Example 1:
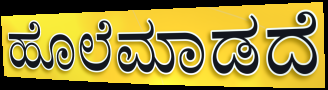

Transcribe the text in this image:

ಹೊಲೆಮಾಡದೆ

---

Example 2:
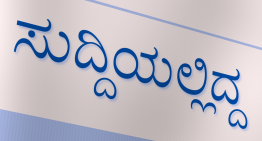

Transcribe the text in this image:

ಸುದ್ದಿಯಲ್ಲಿದ್ದ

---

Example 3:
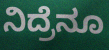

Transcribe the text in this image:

ನಿದ್ರೆನೂ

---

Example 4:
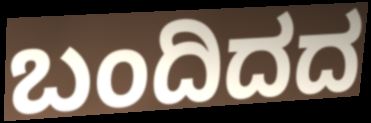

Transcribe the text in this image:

ಬಂದಿದದ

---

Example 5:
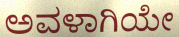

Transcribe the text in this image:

ಅವಳಾಗಿಯೇ